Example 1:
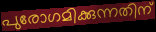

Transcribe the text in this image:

പുരോഗമിക്കുന്നതിന്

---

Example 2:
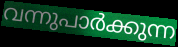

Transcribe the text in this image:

വന്നുപാർക്കുന്ന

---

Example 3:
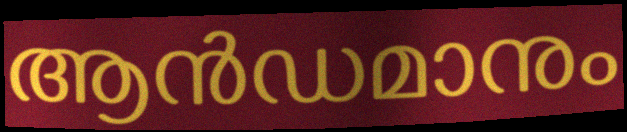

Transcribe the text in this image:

ആൻഡമാനും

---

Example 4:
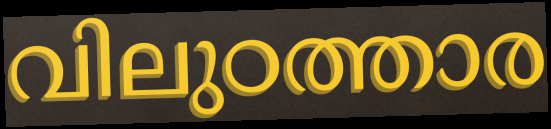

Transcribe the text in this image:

വിലുഠത്താര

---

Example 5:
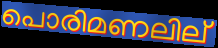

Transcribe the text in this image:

പൊരിമണലില്